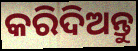
କରିଦିଅନ୍ତୁ